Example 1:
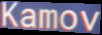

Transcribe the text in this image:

Kamov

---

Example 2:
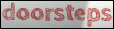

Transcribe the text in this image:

doorsteps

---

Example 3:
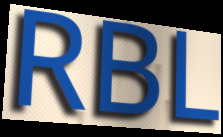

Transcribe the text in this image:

RBL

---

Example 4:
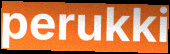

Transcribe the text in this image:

perukki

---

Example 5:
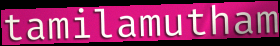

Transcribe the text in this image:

tamilamutham